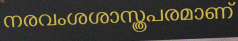
നരവംശശാസ്ത്രപരമാണ്